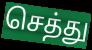
செத்து